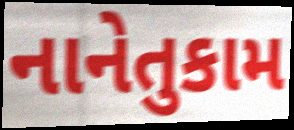
નાનેતુકામ